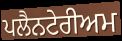
ਪਲੈਨਟੇਰੀਅਮ